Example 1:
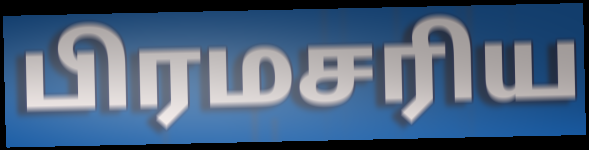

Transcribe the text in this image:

பிரமசரிய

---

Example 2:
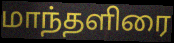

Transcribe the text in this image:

மாந்தளிரை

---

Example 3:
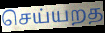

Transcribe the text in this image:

செய்யறத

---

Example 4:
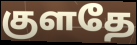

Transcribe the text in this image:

குளதே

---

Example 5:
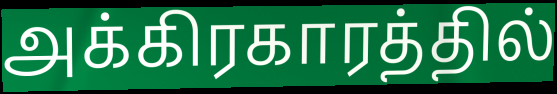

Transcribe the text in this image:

அக்கிரகாரத்தில்